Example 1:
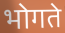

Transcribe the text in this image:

भोगते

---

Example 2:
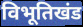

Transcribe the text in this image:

विभूतिखंड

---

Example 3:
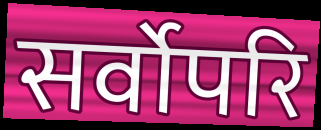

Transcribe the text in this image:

सर्वोपरि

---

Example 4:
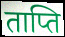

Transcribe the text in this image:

ताप्ति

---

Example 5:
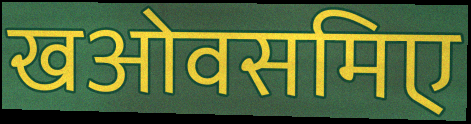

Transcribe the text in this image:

खओवसमिए